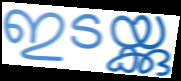
ഇടയ്ക്കു